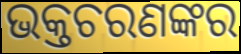
ଭକ୍ତଚରଣଙ୍କର